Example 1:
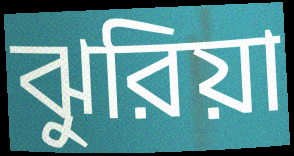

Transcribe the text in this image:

ঝুরিয়া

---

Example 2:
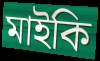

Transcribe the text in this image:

মাইকি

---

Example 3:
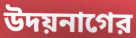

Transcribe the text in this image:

উদয়নাগের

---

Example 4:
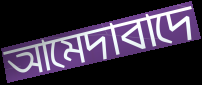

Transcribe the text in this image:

আমেদাবাদে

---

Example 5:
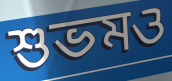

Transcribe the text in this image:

শুভমও